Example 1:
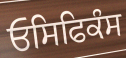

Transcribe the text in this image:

ਓਸਿਫਿਕੰਸ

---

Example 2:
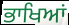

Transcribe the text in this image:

ਭਾਖਿਆਂ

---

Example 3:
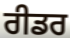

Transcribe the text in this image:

ਰੀਡਰ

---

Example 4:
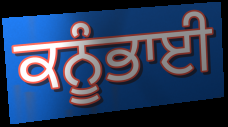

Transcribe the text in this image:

ਕਨੂੰਭਾਈ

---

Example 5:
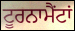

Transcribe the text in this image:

ਟੂਰਨਾਮੈਂਟਾਂ